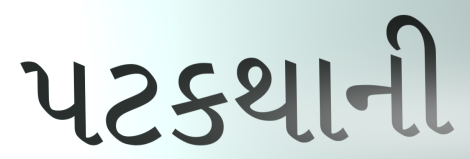
પટકથાની